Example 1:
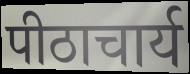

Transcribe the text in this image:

पीठाचार्य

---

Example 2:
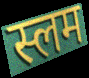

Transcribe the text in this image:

स्लम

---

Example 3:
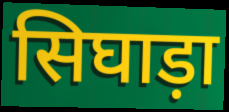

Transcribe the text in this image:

सिघाड़ा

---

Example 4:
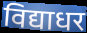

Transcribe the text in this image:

विद्याधर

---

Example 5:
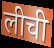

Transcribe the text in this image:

लीची